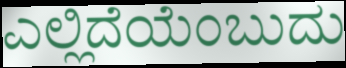
ಎಲ್ಲಿದೆಯೆಂಬುದು